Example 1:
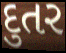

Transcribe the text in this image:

દુતર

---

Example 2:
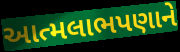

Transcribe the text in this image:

આત્મલાભપણાને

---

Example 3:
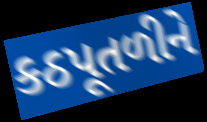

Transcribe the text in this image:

કઠપૂતળીને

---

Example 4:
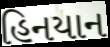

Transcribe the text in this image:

હિનયાન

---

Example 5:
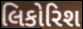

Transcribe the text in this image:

લિકોરિશ